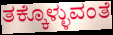
ತಕ್ಕೊಳ್ಳುವಂತೆ